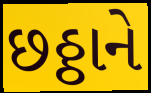
છઠ્ઠાને